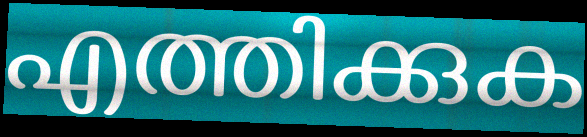
എത്തിക്കുക